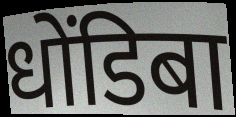
धोंडिबा